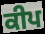
ਕੀਪ